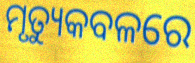
ମୃତ୍ୟୁକବଳରେ